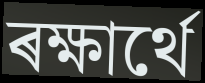
ৰক্ষাৰ্থে